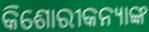
କିଶୋରୀକନ୍ୟାଙ୍କ